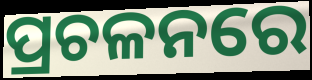
ପ୍ରଚଳନରେ